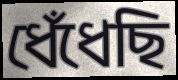
ধেঁধেছি